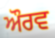
ਔਰਵ